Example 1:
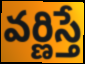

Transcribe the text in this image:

వర్ణిస్తే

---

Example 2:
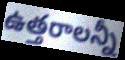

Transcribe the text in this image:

ఉత్తరాలన్నీ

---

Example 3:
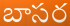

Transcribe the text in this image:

బాసర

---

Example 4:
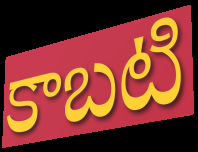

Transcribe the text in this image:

కాబటి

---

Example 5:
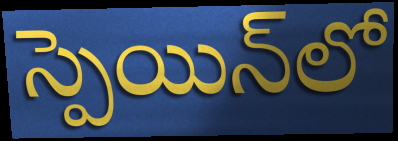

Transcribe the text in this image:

స్పెయిన్‌లో